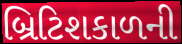
બ્રિટિશકાળની